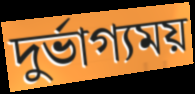
দুর্ভাগ্যময়